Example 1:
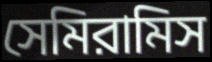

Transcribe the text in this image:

সেমিরামিস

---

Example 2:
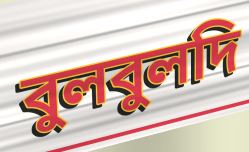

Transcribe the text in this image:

বুলবুলদি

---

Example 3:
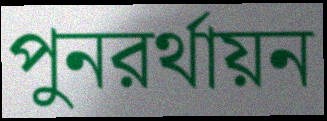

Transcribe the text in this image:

পুনরর্থায়ন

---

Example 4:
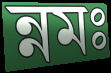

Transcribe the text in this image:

ন্নমঃ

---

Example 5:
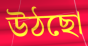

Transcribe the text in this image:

উঠছো